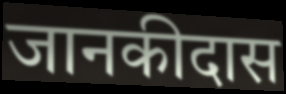
जानकीदास